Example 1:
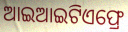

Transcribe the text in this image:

ଆଇଆଇଟିଏଫ୍ରେ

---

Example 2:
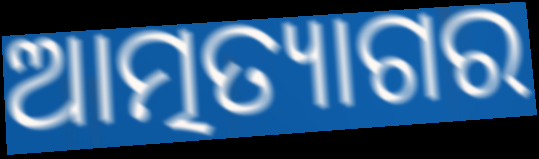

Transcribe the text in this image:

ଆତ୍ମତ୍ୟାଗର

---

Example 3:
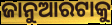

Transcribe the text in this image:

ଜାନୁଆରଟାକୁ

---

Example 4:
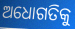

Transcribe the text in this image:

ଅଧୋଗତିକୁ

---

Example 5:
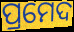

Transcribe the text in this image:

ପ୍ରମେଦ